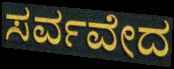
ಸರ್ವವೇದ